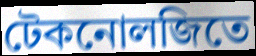
টেকনোলজিতে